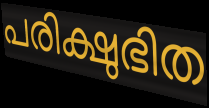
പരിക്ഷുഭിത